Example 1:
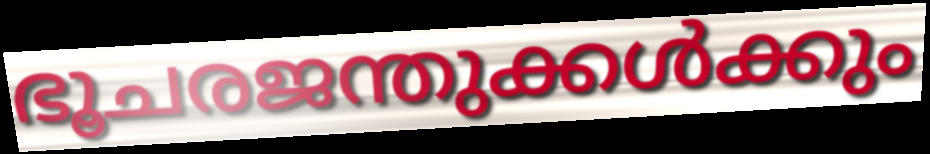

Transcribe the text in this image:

ഭൂചരജന്തുക്കൾക്കും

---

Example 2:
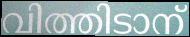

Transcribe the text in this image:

വിത്തിടാന്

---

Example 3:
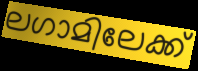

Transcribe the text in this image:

ലഗാമിലേക്ക്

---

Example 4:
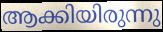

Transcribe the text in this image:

ആക്കിയിരുന്നു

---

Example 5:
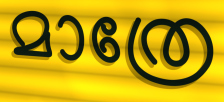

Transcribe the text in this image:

മാത്രേ